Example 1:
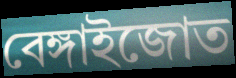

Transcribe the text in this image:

বেঙ্গাইজোত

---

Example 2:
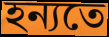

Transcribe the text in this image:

হন্যতে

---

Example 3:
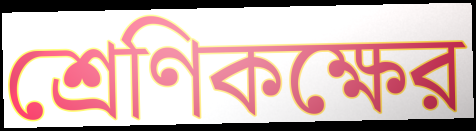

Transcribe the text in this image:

শ্রেণিকক্ষের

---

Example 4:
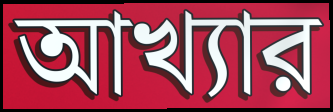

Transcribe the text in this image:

আখ্যার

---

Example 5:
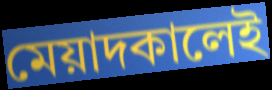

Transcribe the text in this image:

মেয়াদকালেই